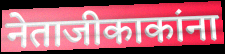
नेताजीकाकांना